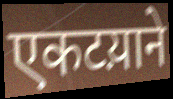
एकटय़ाने